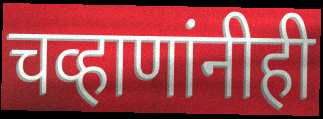
चव्हाणांनीही